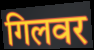
गिलवर